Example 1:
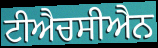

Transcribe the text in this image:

ਟੀਐਚਸੀਐਨ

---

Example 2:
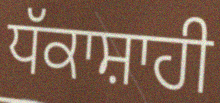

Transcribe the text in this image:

ਧੱਕਾਸ਼ਾਹੀ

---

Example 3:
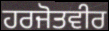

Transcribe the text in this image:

ਹਰਜੋਤਵੀਰ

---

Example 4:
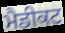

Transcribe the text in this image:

ਮੈਡੀਕਟ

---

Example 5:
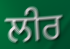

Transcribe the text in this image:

ਲੀਰ